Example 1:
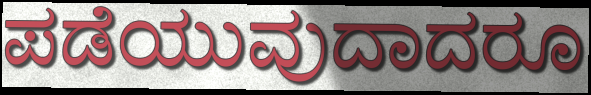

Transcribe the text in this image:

ಪಡೆಯುವುದಾದರೂ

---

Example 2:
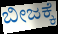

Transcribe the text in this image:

ಬೀಜಕ್ಕೆ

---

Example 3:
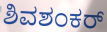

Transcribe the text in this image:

ಶಿವಶಂಕರ್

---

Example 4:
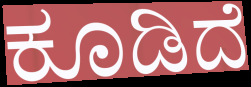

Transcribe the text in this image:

ಕೂಡಿದೆ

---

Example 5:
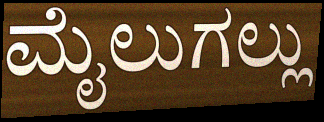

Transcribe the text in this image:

ಮೈಲುಗಲ್ಲು